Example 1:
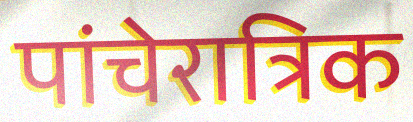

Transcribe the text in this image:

पांचेरात्रिक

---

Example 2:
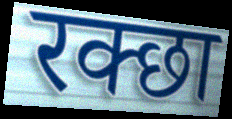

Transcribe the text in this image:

रक्छा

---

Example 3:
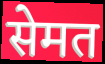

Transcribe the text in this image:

सेमत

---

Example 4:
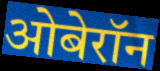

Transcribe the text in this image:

ओबेरॉन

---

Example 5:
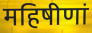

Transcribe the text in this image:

महिषीणां